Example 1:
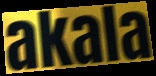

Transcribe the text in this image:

akala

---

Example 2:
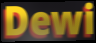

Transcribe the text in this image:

Dewi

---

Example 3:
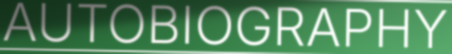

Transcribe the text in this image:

AUTOBIOGRAPHY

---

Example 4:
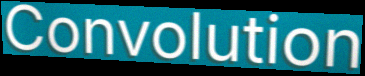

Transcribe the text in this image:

Convolution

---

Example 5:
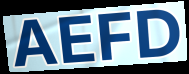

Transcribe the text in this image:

AEFD